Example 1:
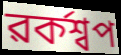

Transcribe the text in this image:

ৱৰ্কশ্বপ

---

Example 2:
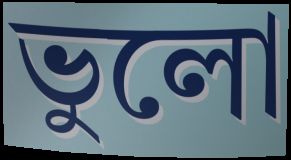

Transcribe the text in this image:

ভুলো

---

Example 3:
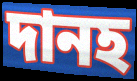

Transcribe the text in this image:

দানহ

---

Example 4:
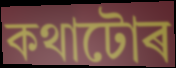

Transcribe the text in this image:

কথাটোৰ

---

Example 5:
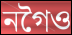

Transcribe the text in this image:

নগৈও